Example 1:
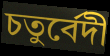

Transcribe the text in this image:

চতুৰ্বেদী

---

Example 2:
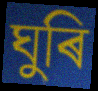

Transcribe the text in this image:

ঘুৰি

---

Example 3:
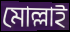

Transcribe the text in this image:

মোল্লাই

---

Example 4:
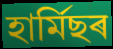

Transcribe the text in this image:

হাৰ্মিছৰ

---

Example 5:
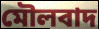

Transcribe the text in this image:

মৌলবাদ